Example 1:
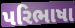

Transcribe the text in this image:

પરિભાષા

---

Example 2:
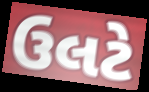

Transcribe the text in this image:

ઉલટે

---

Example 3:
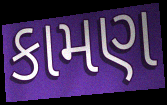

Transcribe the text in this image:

કામણ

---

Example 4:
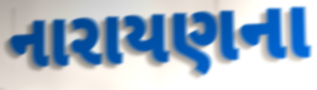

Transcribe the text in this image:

નારાયણના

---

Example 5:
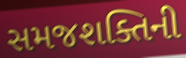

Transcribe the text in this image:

સમજશક્તિની